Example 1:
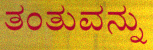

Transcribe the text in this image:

ತಂತುವನ್ನು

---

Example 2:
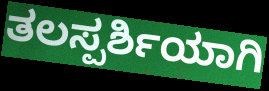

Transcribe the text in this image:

ತಲಸ್ಪರ್ಶಿಯಾಗಿ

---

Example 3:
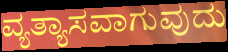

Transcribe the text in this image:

ವ್ಯತ್ಯಾಸವಾಗುವುದು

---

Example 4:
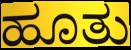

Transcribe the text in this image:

ಹೂತು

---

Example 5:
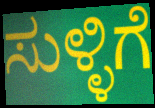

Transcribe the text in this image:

ಸುಳ್ಳಿಗೆ